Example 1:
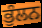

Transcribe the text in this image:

ਭੁੰਲਨ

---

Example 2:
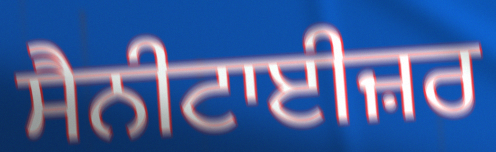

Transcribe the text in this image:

ਸੈਨੀਟਾਈਜ਼ਰ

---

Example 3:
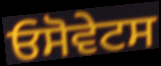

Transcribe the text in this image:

ਓਸੋਵੇਟਸ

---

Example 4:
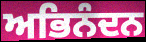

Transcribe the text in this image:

ਅਭਿਨੰਦਨ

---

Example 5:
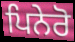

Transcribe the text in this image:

ਪਿਨੇਰੋ